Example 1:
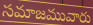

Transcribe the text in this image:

సమాజమువారు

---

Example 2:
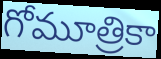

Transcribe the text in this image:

గోమూత్రికా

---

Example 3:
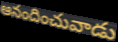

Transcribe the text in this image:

ఆనందించువాడు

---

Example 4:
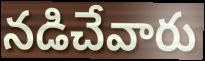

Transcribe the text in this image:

నడిచేవారు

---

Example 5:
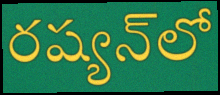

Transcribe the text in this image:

రష్యన్‌లో